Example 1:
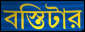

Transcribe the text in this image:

বস্তিটার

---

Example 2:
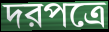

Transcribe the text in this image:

দরপত্রে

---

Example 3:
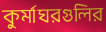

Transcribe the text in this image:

কুর্মাঘরগুলির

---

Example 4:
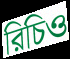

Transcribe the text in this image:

রিচিও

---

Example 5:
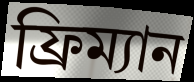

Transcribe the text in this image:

ফ্রিম্যান